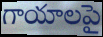
గాయాలపై